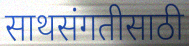
साथसंगतीसाठी